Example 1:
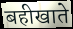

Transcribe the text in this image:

बहीखाते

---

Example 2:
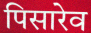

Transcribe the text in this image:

पिसारेव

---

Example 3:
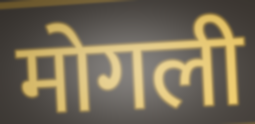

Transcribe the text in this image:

मोगली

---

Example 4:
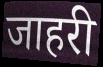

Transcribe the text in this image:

जाहरी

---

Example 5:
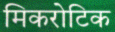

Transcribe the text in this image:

मिकरोटिक